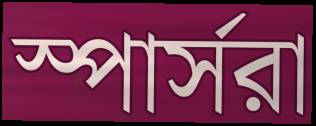
স্পার্সরা